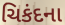
ચિકંદના